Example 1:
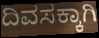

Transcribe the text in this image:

ದಿವಸಕ್ಕಾಗಿ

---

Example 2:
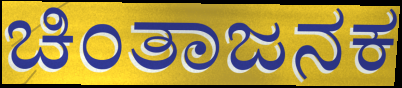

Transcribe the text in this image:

ಚಿಂತಾಜನಕ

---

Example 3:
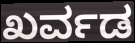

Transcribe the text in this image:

ಖರ್ವಡ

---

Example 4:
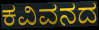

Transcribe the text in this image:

ಕವಿವನದ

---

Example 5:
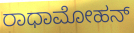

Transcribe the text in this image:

ರಾಧಾಮೋಹನ್